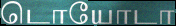
டொயோடா